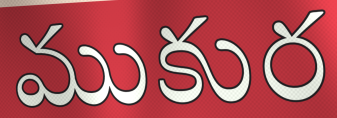
ముకుర